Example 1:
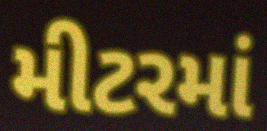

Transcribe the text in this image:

મીટરમાં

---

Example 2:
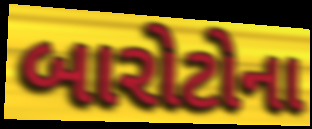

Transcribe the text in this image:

બારોટોના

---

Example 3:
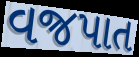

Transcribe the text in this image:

વજ્રપાત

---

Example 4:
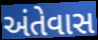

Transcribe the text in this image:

અંતેવાસ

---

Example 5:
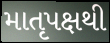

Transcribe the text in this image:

માતૃપક્ષથી